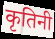
कृतिनी